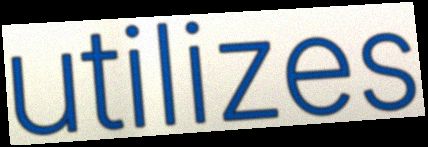
utilizes